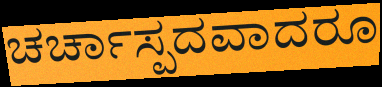
ಚರ್ಚಾಸ್ಪದವಾದರೂ